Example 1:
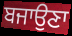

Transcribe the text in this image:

ਬਜਾਉਣਾ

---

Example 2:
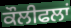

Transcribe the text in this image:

ਕੌਲੀਫਲਾਂ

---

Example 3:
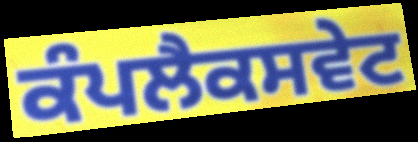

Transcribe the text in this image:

ਕੰਪਲੈਕਸਵੇਟ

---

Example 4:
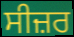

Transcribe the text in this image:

ਸੀਜ਼ਰ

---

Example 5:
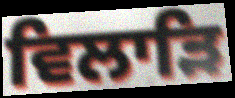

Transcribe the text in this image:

ਵਿਲਾੜਿ